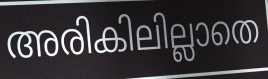
അരികിലില്ലാതെ